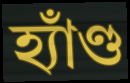
হ্যাঁণ্ড